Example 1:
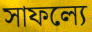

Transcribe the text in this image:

সাফল্যে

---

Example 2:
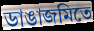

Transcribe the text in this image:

ডাঙাজমিতে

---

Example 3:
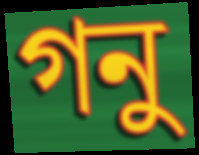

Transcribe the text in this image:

গনু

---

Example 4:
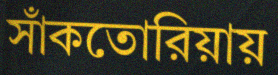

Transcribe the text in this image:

সাঁকতোরিয়ায়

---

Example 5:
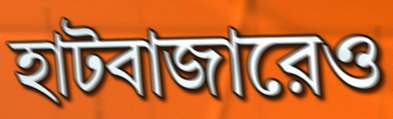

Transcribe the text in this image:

হাটবাজারেও